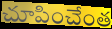
చూపించేంత